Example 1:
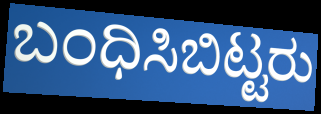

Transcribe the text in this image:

ಬಂಧಿಸಿಬಿಟ್ಟರು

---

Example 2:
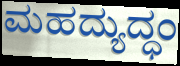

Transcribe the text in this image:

ಮಹದ್ಯುದ್ಧಂ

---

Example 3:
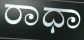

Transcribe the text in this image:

ರಾಧಾ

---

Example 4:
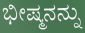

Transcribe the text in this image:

ಭೀಷ್ಮನನ್ನು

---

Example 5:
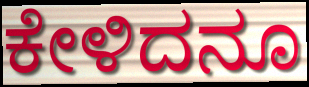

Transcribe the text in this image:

ಕೇಳಿದನೂ